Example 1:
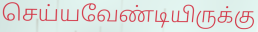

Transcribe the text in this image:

செய்யவேண்டியிருக்கு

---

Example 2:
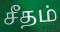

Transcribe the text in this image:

சீதம்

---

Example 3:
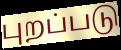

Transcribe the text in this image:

புறப்படு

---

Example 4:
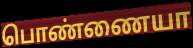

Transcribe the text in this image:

பொண்ணையா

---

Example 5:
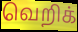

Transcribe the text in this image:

வெறிக்